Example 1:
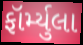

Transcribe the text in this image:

ફૉર્મ્યુલા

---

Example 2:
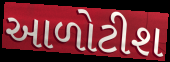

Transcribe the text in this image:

આળોટીશ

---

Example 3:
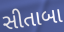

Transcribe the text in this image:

સીતાબા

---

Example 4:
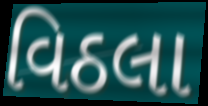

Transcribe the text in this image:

વિઠલા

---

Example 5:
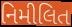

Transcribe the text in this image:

નિમીલિત